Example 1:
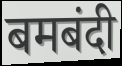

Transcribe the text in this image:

बमबंदी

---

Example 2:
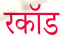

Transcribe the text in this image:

रकॉड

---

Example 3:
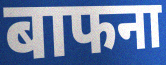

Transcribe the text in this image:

बाफना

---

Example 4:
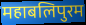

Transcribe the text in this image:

महाबलिपुरम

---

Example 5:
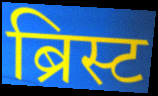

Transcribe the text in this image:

ब्रिस्ट